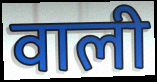
वाली